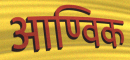
आण्विक